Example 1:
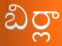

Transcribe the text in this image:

బిర్లా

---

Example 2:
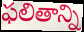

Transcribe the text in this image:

ఫలితాన్ని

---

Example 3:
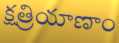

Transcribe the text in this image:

క్షత్రియాణాం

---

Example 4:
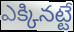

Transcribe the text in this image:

ఎక్కినట్టే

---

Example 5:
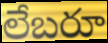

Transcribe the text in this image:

లేబరూ